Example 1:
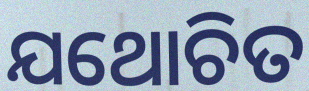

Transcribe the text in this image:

ଯଥୋଚିତ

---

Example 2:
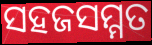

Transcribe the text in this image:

ସହଜସମ୍ମତ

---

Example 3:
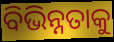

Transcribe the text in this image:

ବିଭିନ୍ନତାକୁ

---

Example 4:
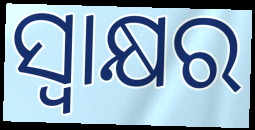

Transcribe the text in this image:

ସ୍ଵାକ୍ଷର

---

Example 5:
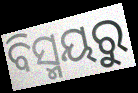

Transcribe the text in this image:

ବିସ୍ମୟରୁ